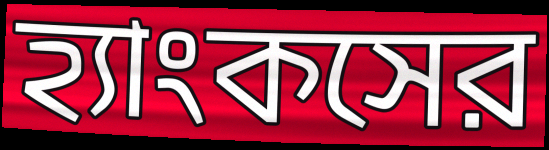
হ্যাংকসের